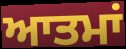
ਆਤਮਾਂ